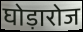
घोड़ारोज